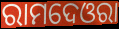
ରାମଦେଓରା